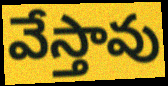
వేస్తావు